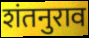
शंतनुराव